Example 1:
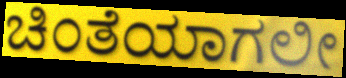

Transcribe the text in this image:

ಚಿಂತೆಯಾಗಲೀ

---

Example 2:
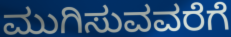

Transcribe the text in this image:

ಮುಗಿಸುವವರೆಗೆ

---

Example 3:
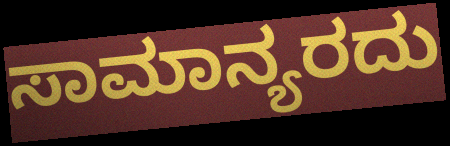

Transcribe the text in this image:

ಸಾಮಾನ್ಯರದು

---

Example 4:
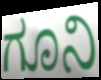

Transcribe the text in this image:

ಗೂನಿ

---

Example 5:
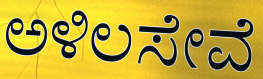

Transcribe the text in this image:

ಅಳಿಲಸೇವೆ